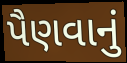
પૈણવાનું